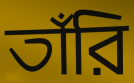
তাঁরি